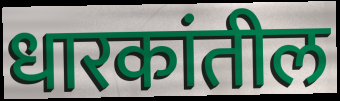
धारकांतील